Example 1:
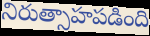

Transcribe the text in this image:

నిరుత్సాహపడింది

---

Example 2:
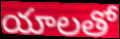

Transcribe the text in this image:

యాలతో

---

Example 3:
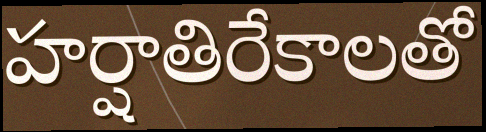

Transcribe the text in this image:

హర్షాతిరేకాలతో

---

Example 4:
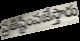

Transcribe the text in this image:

ప్రతిష్టింపజేస్తారు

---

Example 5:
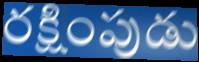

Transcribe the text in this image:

రక్షింపుడు